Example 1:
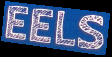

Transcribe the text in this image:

EELS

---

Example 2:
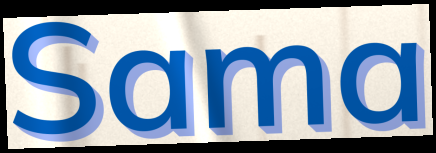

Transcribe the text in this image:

Sama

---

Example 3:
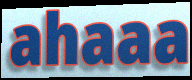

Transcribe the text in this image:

ahaaa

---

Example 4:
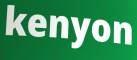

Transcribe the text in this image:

kenyon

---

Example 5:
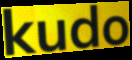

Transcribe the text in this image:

kudo